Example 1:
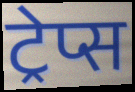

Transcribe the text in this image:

ट्रेप्स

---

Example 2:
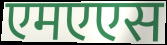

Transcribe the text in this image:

एमएएस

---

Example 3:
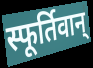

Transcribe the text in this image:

स्फूर्तिवान्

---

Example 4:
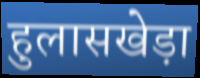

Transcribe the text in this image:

हुलासखेड़ा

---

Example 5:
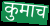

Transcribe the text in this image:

कुमाच